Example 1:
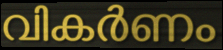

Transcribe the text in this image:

വികർണം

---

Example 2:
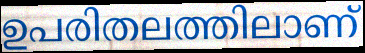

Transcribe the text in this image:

ഉപരിതലത്തിലാണ്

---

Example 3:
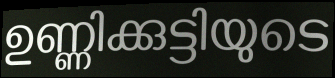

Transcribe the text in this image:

ഉണ്ണിക്കുട്ടിയുടെ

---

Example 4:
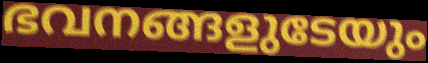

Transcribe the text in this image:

ഭവനങ്ങളുടേയും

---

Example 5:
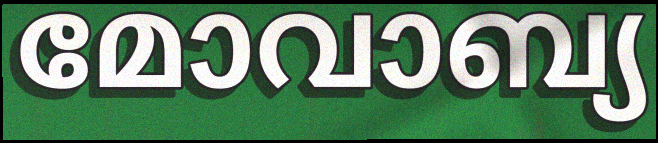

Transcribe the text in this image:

മോവാബ്യ